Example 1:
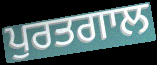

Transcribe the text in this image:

ਪੁਰਤਗਾਲ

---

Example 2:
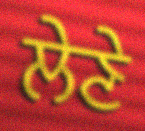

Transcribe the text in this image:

ਲੇਣੇ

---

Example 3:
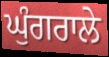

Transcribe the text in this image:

ਘੁੰਗਰਾਲੇ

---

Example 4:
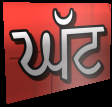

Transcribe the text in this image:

ਘੱਟ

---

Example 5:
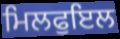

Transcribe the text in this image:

ਮਿਲਫੁਇਲ